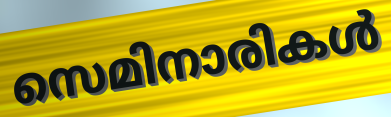
സെമിനാരികൾ